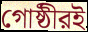
গোষ্ঠীরই